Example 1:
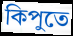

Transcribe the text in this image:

কিপুতে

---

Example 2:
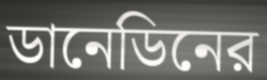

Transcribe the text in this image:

ডানেডিনের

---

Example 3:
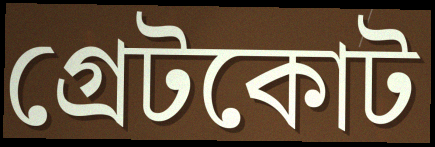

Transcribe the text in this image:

গ্রেটকোট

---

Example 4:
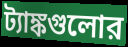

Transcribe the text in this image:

ট্যাঙ্কগুলোর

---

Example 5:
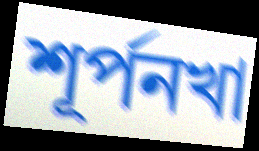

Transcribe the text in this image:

শূর্পনখা